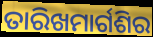
ତାରିଖମାର୍ଗଶିର